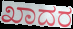
ಖಾದರ